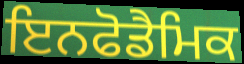
ਇਨਫੋਡੈਮਿਕ